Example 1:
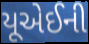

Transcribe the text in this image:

યૂએઈની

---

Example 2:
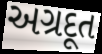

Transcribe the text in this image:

અગ્રદૂત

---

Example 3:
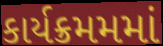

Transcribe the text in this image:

કાર્યક્રમમમાં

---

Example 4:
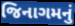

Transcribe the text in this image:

જિનાગમનું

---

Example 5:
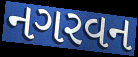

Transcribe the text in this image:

નગરવન